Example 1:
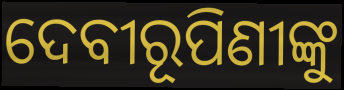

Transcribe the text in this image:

ଦେବୀରୂପିଣୀଙ୍କୁ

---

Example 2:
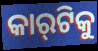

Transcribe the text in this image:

କାର୍‍ଟିକୁ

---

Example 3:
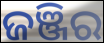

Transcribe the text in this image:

ଜଞ୍ଜିର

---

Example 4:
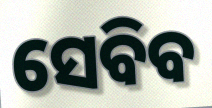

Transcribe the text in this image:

ସେବିବ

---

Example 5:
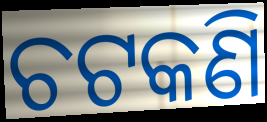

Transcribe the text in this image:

ଚଟକଣି